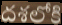
దశలోకి